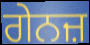
ਗੇਨਜ਼